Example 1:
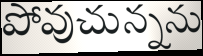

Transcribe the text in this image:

పోవుచున్నను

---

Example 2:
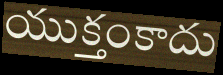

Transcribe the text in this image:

యుక్తంకాదు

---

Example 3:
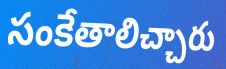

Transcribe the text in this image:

సంకేతాలిచ్చారు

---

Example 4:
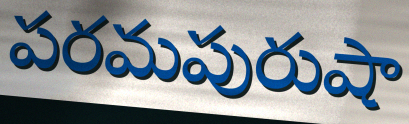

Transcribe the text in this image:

పరమపురుషా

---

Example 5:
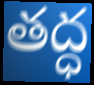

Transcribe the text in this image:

తద్ధ